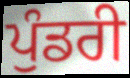
ਪੁੰਡਰੀ